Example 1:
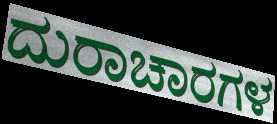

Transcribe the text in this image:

ದುರಾಚಾರಗಳ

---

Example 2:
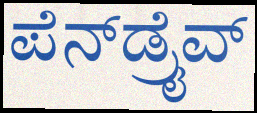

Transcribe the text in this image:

ಪೆನ್‌ಡ್ರೈವ್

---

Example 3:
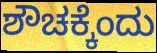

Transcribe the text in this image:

ಶೌಚಕ್ಕೆಂದು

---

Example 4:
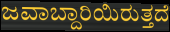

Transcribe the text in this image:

ಜವಾಬ್ದಾರಿಯಿರುತ್ತದೆ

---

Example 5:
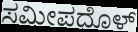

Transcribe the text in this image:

ಸಮೀಪದೊಳ್